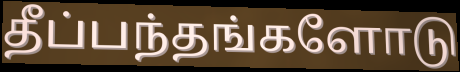
தீப்பந்தங்களோடு